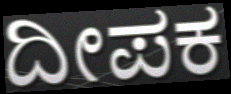
ದೀಪಕ